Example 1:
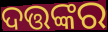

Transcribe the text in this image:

ଦତ୍ତଙ୍କର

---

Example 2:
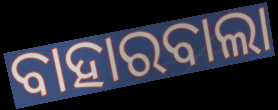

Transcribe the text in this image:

ବାହାରବାଲା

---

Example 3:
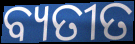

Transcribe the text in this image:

ବ୍ଯତୀତ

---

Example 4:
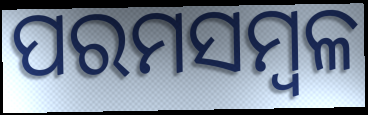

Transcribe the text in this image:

ପରମସମ୍ବଳ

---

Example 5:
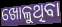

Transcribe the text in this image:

ଖୋଳୁଥିବା